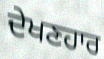
ਦੇਖਣਹਾਰ